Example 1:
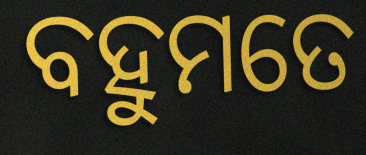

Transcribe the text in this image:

ବହୁମତେ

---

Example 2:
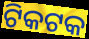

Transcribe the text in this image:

ଟିକଟକ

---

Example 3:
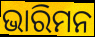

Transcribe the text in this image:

ଭାରିମନ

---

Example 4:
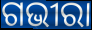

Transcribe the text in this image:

ଗଭୀରା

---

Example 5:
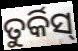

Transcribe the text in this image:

ତୁର୍କିସ୍